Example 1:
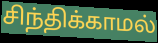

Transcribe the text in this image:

சிந்திக்காமல்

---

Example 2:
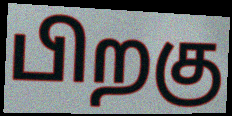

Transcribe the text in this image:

பிறகு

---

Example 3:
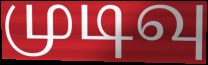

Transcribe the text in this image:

முடிவு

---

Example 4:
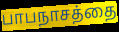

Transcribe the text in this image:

பாபநாசத்தை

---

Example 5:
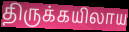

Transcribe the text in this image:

திருக்கயிலாய